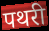
पथरी